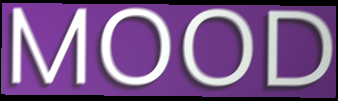
MOOD